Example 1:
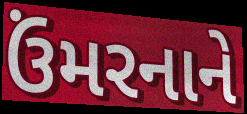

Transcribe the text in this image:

ઉંમરનાને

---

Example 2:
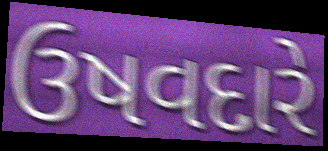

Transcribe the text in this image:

ઉષવદારે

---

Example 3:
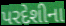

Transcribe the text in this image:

પરદેશીના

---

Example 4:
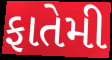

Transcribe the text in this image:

ફાતેમી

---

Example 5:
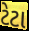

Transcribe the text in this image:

ટેટા